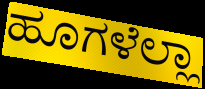
ಹೂಗಳೆಲ್ಲಾ